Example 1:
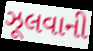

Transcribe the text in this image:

ઝૂલવાની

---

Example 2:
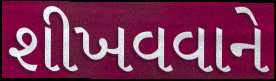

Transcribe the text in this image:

શીખવવાને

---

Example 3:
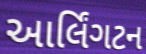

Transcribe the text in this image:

આર્લિંગટન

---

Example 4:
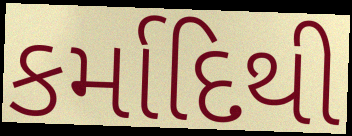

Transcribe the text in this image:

કર્માદિથી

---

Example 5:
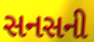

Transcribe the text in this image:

સનસની